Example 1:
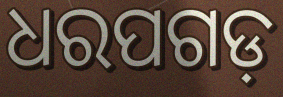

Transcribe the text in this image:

ଧରପଗଡ଼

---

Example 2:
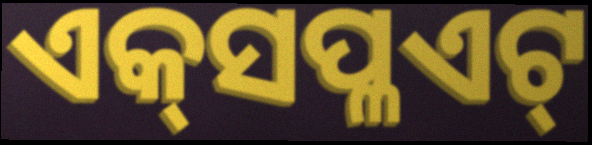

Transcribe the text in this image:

ଏକ୍‍ସପ୍ଳଏଟ୍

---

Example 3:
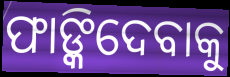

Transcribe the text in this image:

ଫାଙ୍କିଦେବାକୁ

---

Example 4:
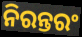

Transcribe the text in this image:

ନିରନ୍ତରଂ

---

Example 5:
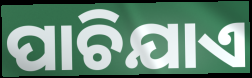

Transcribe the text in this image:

ପାଚିଯାଏ